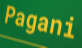
Pagani